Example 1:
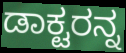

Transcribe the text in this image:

ಡಾಕ್ಟರನ್ನ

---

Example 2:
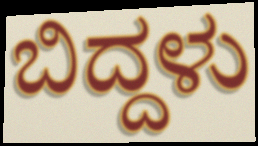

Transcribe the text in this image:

ಬಿದ್ದಳು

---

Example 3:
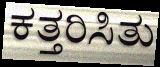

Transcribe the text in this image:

ಕತ್ತರಿಸಿತು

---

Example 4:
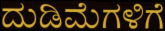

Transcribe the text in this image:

ದುಡಿಮೆಗಳಿಗೆ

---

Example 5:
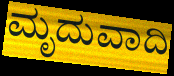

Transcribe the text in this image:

ಮೃದುವಾದಿ